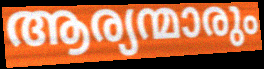
ആര്യന്മാരും